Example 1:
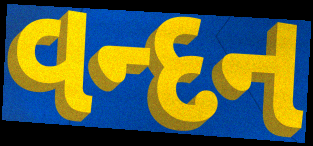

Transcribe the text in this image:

વન્દન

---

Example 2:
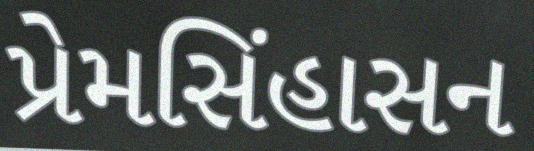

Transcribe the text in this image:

પ્રેમસિંહાસન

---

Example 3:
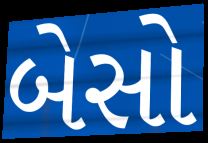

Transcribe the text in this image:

બેસો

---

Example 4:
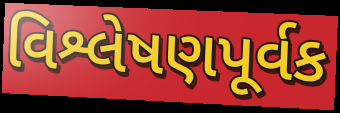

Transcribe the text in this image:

વિશ્લેષણપૂર્વક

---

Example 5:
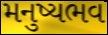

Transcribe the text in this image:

મનુષ્યભવ